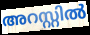
അറസ്റ്റിൽ